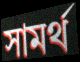
সামর্থ